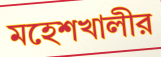
মহেশখালীর